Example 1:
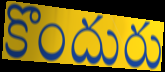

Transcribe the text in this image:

కొందురు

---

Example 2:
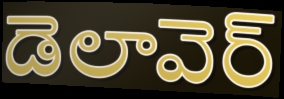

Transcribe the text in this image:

డెలావెర్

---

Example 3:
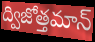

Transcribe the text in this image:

ద్విజోత్తమాన్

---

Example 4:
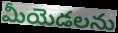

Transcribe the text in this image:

మీయెడలను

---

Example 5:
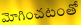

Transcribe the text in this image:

మోగించటంతో